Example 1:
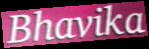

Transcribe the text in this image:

Bhavika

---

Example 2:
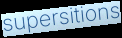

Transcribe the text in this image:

supersitions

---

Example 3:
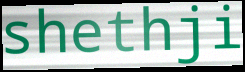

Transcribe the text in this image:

shethji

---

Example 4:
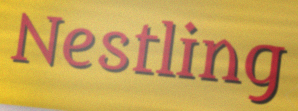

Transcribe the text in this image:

Nestling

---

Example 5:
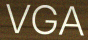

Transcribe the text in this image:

VGA